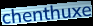
chenthuxe